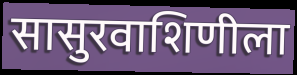
सासुरवाशिणीला